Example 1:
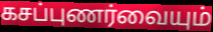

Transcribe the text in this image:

கசப்புணர்வையும்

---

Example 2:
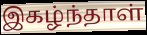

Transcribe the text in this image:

இகழ்ந்தாள்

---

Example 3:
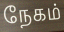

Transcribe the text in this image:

நேகம்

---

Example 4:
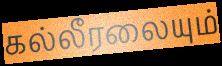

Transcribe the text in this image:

கல்லீரலையும்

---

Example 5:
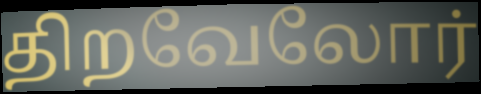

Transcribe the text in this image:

திறவேலோர்